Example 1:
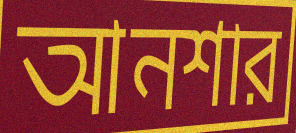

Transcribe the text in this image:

আনশার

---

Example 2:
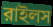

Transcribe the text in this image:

রাইলস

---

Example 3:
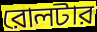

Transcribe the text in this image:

রোলটার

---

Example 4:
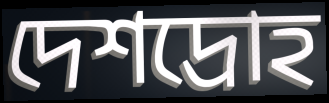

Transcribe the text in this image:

দেশদ্রোহ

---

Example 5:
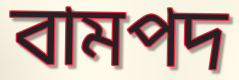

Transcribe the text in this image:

বামপদ